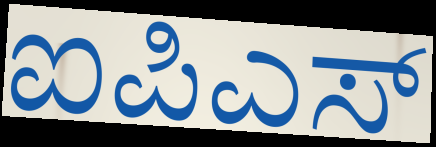
ಐಪಿಎಸ್